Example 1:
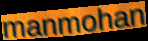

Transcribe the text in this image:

manmohan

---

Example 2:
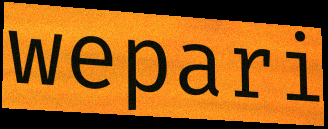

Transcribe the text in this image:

wepari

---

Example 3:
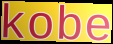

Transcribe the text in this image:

kobe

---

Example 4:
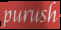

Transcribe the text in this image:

purush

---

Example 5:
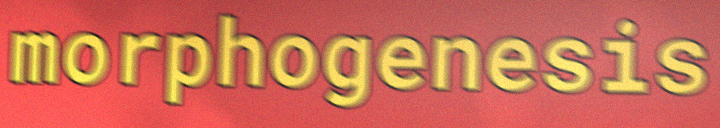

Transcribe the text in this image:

morphogenesis